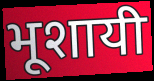
भूशायी